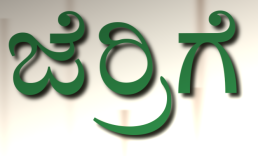
ಜೆರ್ರಿಗೆ